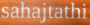
sahajtathi